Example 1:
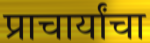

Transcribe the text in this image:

प्राचार्यांचा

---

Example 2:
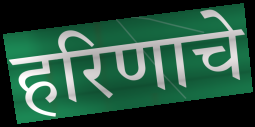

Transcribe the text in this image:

हरिणाचे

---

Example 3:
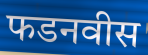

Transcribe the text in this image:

फडनवीस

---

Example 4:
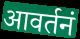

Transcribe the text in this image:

आवर्तनं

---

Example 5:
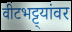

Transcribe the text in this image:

वीटभट्ट्यांवर